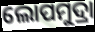
ଲୋପମୁଦ୍ରା